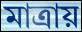
মাত্রায়